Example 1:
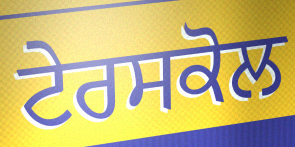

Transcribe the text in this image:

ਟੇਰਸਕੋਲ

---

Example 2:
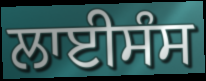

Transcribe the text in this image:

ਲਾਈਸੰਸ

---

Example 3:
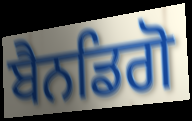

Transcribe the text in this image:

ਬੈਨਡਿਗੋ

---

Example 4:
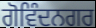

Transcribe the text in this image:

ਗੋਵਿੰਦਨਗਰ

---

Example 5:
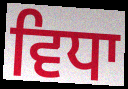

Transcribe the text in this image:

ਵਿਧਾ